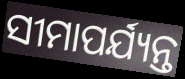
ସୀମାପର୍ଯ୍ୟନ୍ତ